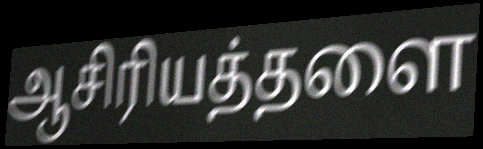
ஆசிரியத்தளை